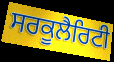
ਸਰਕੂਲੈਰਿਟੀ